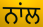
ਨਾਂਲ